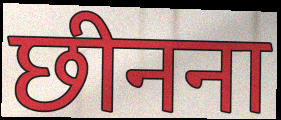
छीनना